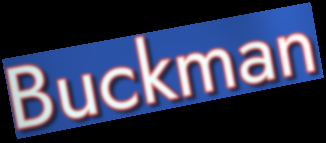
Buckman